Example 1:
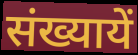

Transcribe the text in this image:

संख्यायें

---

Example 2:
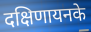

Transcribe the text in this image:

दक्षिणायनके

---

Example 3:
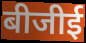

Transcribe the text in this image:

बीजीई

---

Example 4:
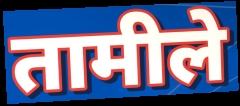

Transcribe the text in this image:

तामीले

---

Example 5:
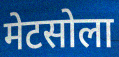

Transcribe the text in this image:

मेटसोला